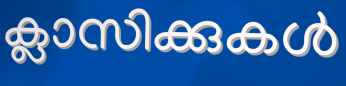
ക്ലാസിക്കുകൾ